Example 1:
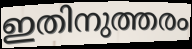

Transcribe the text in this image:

ഇതിനുത്തരം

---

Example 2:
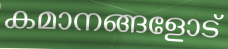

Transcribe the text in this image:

കമാനങ്ങളോട്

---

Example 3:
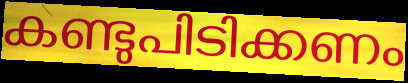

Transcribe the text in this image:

കണ്ടുപിടിക്കണം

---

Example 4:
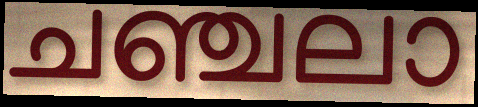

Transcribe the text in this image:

ചഞ്ചലാ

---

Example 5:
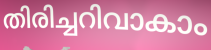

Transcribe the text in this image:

തിരിച്ചറിവാകാം